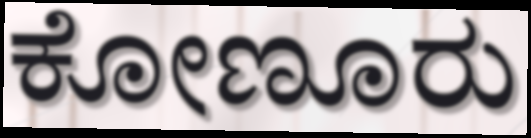
ಕೋಣೂರು